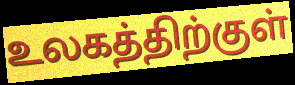
உலகத்திற்குள்